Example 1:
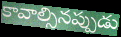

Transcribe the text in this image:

కావాల్సినప్పుడు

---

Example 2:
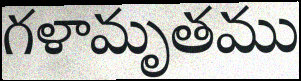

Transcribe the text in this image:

గళామృతము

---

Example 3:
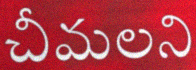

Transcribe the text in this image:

చీమలని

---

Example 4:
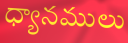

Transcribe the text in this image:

ధ్యానములు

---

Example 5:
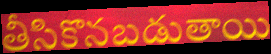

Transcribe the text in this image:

తీసికొనబడుతాయి